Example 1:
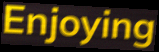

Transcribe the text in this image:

Enjoying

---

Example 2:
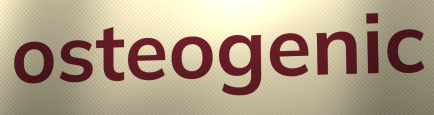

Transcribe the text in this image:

osteogenic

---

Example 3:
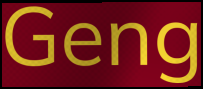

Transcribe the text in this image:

Geng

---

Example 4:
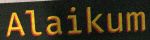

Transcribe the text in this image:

Alaikum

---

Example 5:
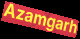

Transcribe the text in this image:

Azamgarh